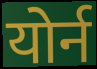
योर्न